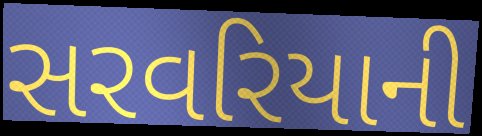
સરવરિયાની